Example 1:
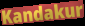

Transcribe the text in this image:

Kandakur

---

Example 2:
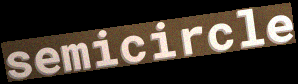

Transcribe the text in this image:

semicircle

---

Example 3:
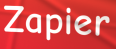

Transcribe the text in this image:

Zapier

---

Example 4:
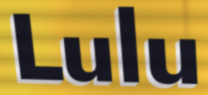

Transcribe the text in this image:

Lulu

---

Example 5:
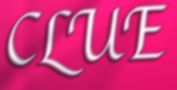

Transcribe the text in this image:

CLUE